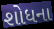
શોધના